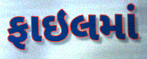
ફાઇલમાં